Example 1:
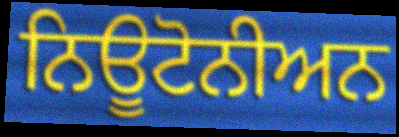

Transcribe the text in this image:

ਨਿਊਟੋਨੀਅਨ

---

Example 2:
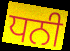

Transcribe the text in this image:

ਧਨੀ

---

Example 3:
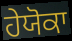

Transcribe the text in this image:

ਹੇਯੋਕਾ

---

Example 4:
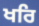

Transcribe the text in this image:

ਖਰਿ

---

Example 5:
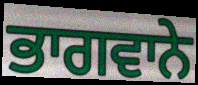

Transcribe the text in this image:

ਭਾਗਵਾਨੇ